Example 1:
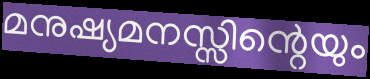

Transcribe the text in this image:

മനുഷ്യമനസ്സിന്റെയും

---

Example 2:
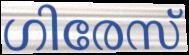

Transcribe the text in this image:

ഗിരേസ്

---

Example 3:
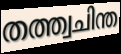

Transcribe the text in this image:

തത്ത്വചിന്ത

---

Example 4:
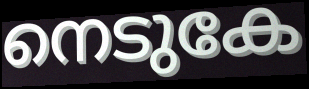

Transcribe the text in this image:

നെടുകേ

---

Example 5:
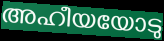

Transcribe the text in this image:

അഹീയയോടു